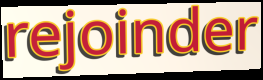
rejoinder